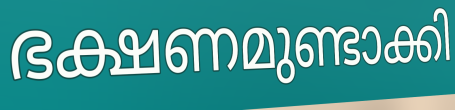
ഭക്ഷണമുണ്ടാക്കി